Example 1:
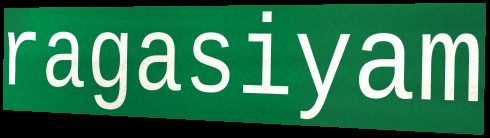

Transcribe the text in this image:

ragasiyam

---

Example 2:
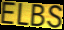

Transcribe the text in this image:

ELBS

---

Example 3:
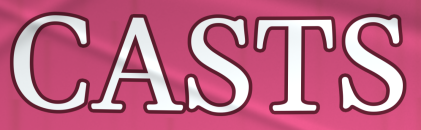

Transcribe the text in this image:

CASTS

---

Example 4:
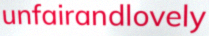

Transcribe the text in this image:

unfairandlovely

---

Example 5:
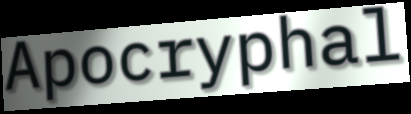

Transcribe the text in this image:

Apocryphal